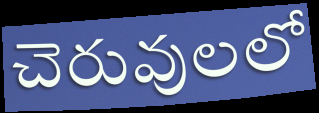
చెరువులలో